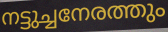
നട്ടുച്ചനേരത്തും